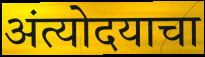
अंत्योदयाचा